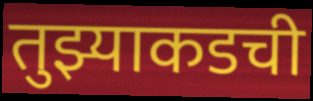
तुझ्याकडची